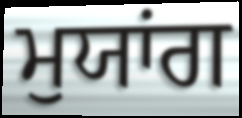
ਮੁਯਾਂਗ